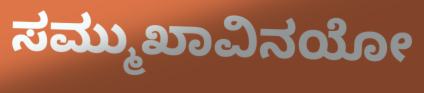
ಸಮ್ಮುಖಾವಿನಯೋ